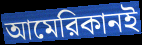
আমেরিকানই